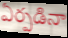
ఏర్పడినా